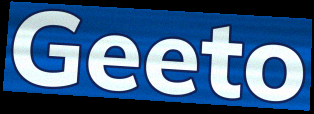
Geeto